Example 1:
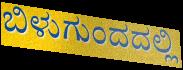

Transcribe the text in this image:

ಬಿಳುಗುಂದದಲ್ಲಿ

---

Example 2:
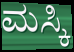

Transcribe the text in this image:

ಮಸ್ಕಿ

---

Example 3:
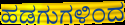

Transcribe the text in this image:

ಹಡಗುಗಳಿಂದ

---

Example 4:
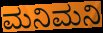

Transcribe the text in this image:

ಮನಿಮನಿ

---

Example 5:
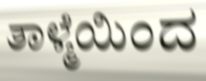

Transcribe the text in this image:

ತಾಳ್ಮೆಯಿಂದ